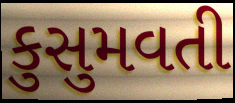
કુસુમવતી